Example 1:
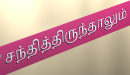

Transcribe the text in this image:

சந்தித்திருந்தாலும்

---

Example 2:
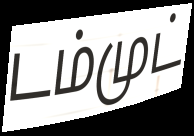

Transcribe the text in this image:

டம்முட்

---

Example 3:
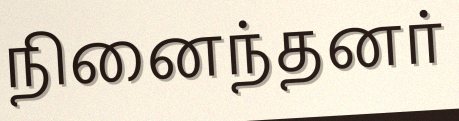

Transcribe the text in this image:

நினைந்தனர்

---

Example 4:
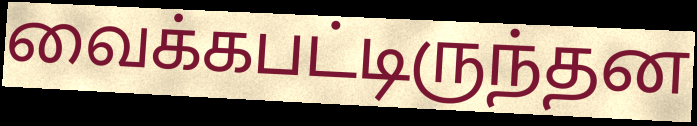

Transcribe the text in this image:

வைக்கபட்டிருந்தன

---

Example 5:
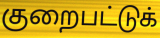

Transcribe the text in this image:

குறைபட்டுக்